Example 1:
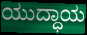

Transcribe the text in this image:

ಯುದ್ಧಾಯ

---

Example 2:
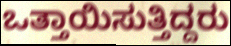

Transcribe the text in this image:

ಒತ್ತಾಯಿಸುತ್ತಿದ್ದರು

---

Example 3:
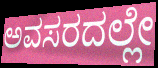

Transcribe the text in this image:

ಅವಸರದಲ್ಲೇ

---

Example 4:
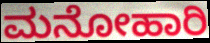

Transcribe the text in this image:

ಮನೋಹಾರಿ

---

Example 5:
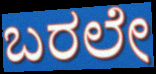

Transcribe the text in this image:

ಬರಲೇ